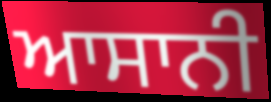
ਆਸਾਨੀ